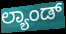
ಲ್ಯಾಂಡ್